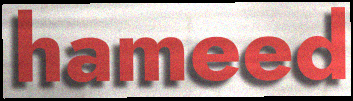
hameed